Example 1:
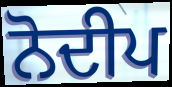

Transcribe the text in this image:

ਨੋਦੀਪ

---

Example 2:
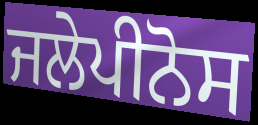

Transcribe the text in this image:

ਜਲੇਪੀਨੋਸ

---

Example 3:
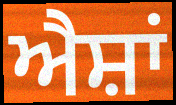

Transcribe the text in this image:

ਐਸ਼ਾਂ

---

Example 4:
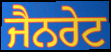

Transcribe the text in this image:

ਜੈਨਰੇਟ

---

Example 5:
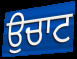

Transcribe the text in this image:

ਉਚਾਟ